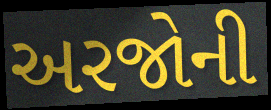
અરજોની